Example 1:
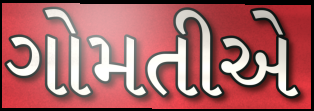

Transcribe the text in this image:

ગોમતીએ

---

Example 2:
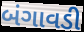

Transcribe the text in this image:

બંગાવડી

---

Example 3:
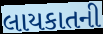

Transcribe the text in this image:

લાયકાતની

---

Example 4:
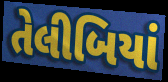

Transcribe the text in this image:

તેલીબિયાં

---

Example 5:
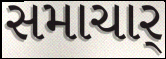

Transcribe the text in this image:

સમાચાર્